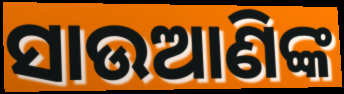
ସାଉଆଣିଙ୍କ